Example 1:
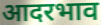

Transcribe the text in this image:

आदरभाव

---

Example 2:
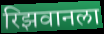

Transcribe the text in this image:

रिझवानला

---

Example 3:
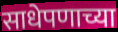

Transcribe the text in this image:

साधेपणाच्या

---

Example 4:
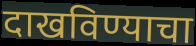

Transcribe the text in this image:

दाखविण्याचा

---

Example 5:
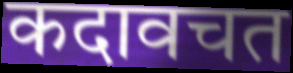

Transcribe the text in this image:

कदावचत